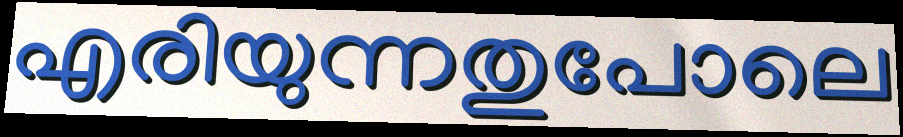
എരിയുന്നതുപോലെ